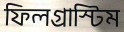
ফিলগ্রাস্টিম